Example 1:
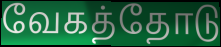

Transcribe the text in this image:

வேகத்தோடு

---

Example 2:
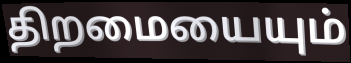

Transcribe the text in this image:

திறமையையும்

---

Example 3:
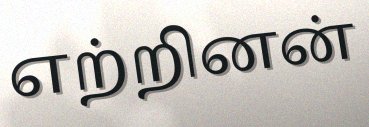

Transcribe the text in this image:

எற்றினன்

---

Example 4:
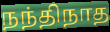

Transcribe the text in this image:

நந்திநாத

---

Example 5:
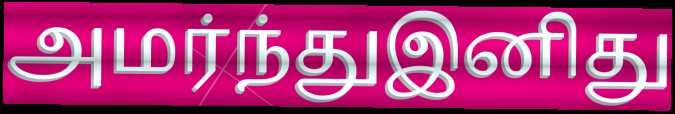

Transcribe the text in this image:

அமர்ந்துஇனிது